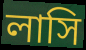
লাসি